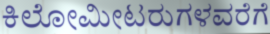
ಕಿಲೋಮೀಟರುಗಳವರೆಗೆ